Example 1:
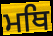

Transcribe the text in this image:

ਮਥਿ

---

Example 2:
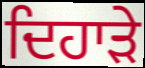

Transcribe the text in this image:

ਦਿਹਾਡ਼ੇ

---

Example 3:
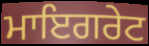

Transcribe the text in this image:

ਮਾਇਗਰੇਟ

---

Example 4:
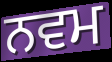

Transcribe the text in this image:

ਨਵਮ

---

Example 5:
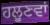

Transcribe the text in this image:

ਹਲੂਣਵਾਂ